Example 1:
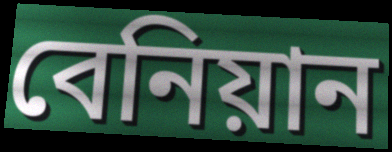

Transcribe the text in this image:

বেনিয়ান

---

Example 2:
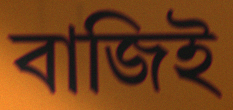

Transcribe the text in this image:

বাজিই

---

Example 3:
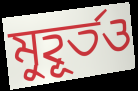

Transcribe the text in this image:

মুহূর্তও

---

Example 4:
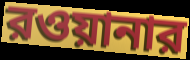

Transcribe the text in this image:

রওয়ানার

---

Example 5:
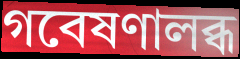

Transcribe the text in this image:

গবেষণালব্ধ